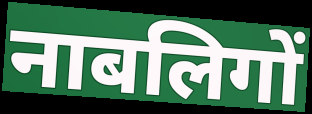
नाबलिगों